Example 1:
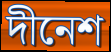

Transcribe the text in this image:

দীনেশ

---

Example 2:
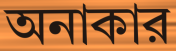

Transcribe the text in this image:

অনাকার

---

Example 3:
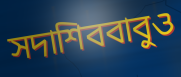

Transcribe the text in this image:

সদাশিববাবুও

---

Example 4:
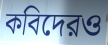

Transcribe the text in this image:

কবিদেরও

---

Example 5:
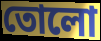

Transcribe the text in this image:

তোলো